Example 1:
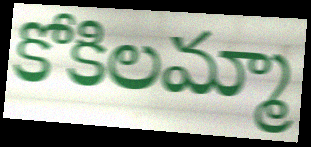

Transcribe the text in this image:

కోకిలమ్మా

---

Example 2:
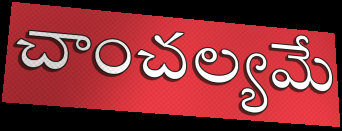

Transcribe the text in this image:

చాంచల్యమే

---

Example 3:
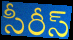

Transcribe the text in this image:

సీరీస్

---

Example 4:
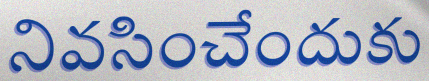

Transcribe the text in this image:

నివసించేందుకు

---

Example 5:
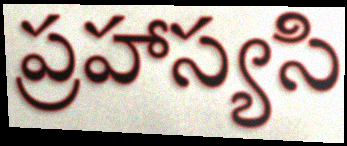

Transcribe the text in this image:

ప్రహాస్యసి